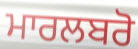
ਮਾਰਲਬਰੋ